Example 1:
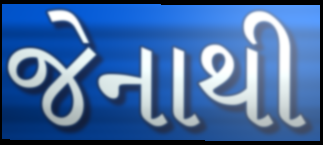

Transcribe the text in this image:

જેનાથી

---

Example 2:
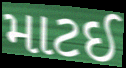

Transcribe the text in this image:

માટઈ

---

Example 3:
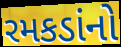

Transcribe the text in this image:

રમકડાંનો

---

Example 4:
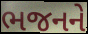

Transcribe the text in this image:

ભજનને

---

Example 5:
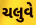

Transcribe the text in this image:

ચલુવે